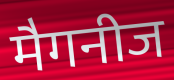
मैगनीज